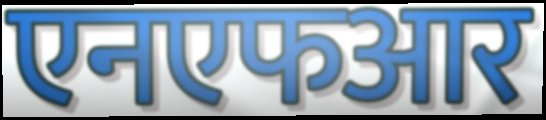
एनएफआर